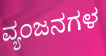
ವ್ಯಂಜನಗಳ